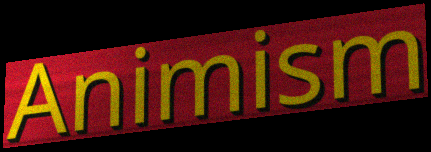
Animism